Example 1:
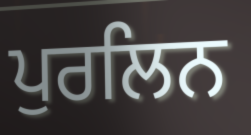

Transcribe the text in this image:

ਪੁਰਲਿਨ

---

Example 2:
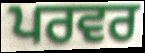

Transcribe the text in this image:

ਪਰਵਰ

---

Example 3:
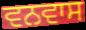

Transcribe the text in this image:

ਵਨਵਾਸ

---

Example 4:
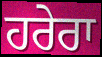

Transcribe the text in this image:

ਹਰੇਰਾ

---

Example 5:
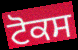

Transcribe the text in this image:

ਟੋਕਸ